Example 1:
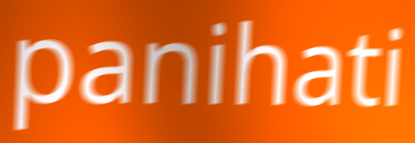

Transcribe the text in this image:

panihati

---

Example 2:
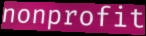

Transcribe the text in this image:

nonprofit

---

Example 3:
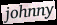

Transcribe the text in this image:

johnny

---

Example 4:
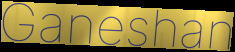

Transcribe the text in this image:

Ganeshan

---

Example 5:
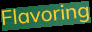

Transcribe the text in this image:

Flavoring